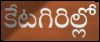
కేటగిరిల్లో